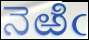
నెఱిఁ